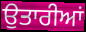
ਉਤਾਰੀਆਂ